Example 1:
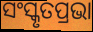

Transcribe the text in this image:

ସଂସ୍କୃତପ୍ରଭା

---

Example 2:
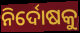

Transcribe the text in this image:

ନିର୍ଦୋଷକୁ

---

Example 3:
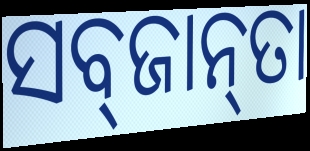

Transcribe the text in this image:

ସବ୍‌ଜାନ୍‌ତା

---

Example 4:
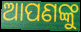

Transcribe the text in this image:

ଆପଣଙ୍କୁ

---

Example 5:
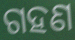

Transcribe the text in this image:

ଗହଣ